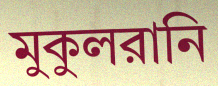
মুকুলরানি